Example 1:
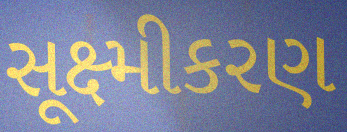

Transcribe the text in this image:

સૂક્ષ્મીકરણ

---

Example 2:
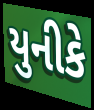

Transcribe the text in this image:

યુનીકે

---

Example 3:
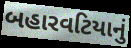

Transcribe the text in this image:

બહારવટિયાનું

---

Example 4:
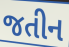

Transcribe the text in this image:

જતીન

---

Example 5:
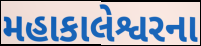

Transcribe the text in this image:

મહાકાલેશ્વરના